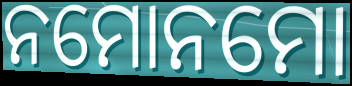
ନମୋନମୋ